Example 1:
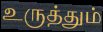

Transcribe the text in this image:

உருத்தும்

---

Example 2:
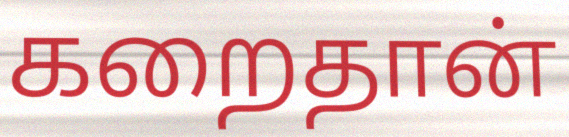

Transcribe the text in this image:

கறைதான்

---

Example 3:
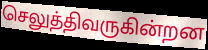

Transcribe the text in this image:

செலுத்திவருகின்றன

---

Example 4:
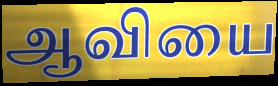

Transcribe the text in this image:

ஆவியை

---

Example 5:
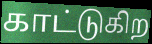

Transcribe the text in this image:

காட்டுகிற